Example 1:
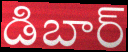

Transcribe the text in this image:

డిబార్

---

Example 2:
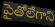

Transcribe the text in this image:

పైతోలేగాని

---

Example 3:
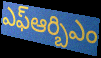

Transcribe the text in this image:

ఎఫ్ఆర్బిఎం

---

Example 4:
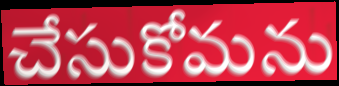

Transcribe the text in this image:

చేసుకోమను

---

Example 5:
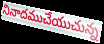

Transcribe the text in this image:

నినాదముచేయుచున్న